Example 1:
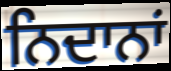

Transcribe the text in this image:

ਨਿਦਾਨਾਂ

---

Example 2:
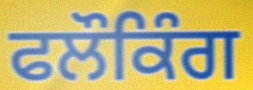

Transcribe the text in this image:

ਫਲੌਕਿੰਗ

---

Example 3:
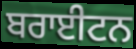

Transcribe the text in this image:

ਬਰਾਈਟਨ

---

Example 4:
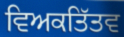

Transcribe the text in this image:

ਵਿਅਕਤਿੱਤਵ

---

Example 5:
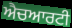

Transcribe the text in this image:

ਐਚਆਰਟੀ